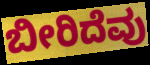
ಬೀರಿದೆವು